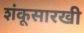
शंकूसारखी